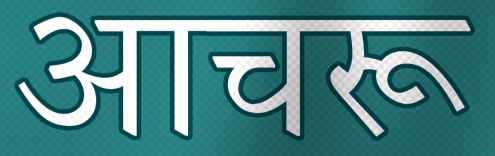
आचरू